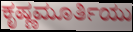
ಕೃಷ್ಣಮೂರ್ತಿಯು